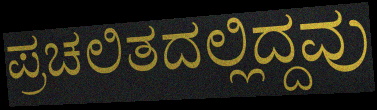
ಪ್ರಚಲಿತದಲ್ಲಿದ್ದವು